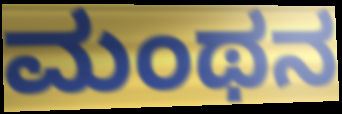
ಮಂಥನ